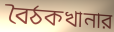
বৈঠকখানার